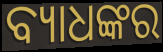
ବ୍ୟାଧଙ୍କର